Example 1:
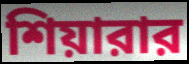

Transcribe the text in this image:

শিয়ারার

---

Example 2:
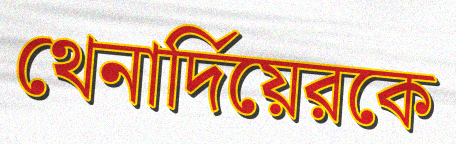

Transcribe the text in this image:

থেনার্দিয়েরকে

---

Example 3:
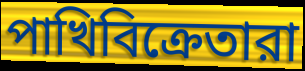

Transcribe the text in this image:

পাখিবিক্রেতারা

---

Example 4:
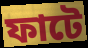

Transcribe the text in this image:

ফাটে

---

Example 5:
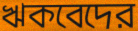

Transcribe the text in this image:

ঋকবেদের